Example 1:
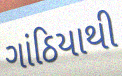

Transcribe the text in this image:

ગાંઠિયાથી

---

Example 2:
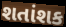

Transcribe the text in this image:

શતાંશક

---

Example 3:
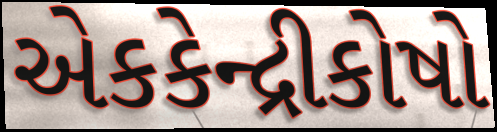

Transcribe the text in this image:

એકકેન્દ્રીકોષો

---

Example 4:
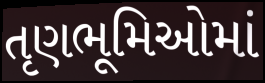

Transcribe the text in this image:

તૃણભૂમિઓમાં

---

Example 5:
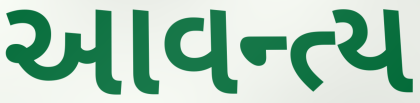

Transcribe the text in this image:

આવન્ત્ય